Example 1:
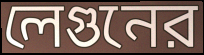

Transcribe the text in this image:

লেগুনের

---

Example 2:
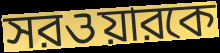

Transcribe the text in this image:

সরওয়ারকে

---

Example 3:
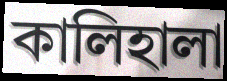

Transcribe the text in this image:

কালিহালা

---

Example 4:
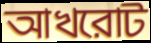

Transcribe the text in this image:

আখরোট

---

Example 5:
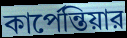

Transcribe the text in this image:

কার্পেন্তিয়ার